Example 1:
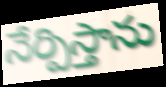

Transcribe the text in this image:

నేర్పిస్తాను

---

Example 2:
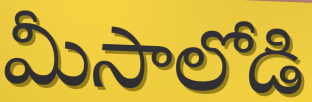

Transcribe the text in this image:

మీసాలోడి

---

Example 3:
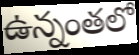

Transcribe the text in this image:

ఉన్నంతలో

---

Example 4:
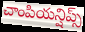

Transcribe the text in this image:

చాంపియన్షిప్స్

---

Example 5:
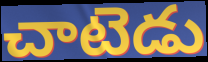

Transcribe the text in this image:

చాటెడు